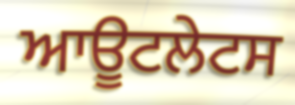
ਆਊਟਲੇਟਸ